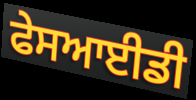
ਫੇਸਆਈਡੀ